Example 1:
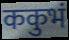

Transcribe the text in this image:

ककुभं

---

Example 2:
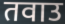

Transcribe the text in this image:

तवाउ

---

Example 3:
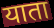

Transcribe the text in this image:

याता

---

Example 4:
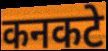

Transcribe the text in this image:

कनकटे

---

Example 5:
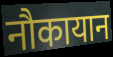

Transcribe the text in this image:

नौकायान